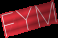
FYM